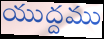
యుద్దము